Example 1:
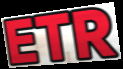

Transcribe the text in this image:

ETR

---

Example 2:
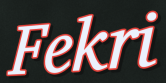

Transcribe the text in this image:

Fekri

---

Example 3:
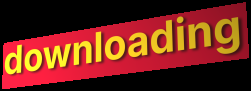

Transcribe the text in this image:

downloading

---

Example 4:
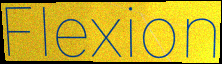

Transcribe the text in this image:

Flexion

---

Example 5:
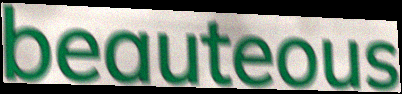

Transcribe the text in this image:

beauteous